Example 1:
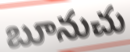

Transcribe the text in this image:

బూనుచు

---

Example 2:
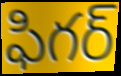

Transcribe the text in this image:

ఫిగర్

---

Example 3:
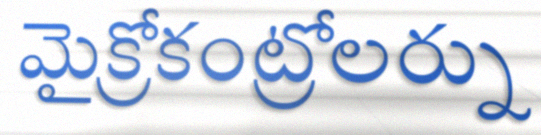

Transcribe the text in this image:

మైక్రోకంట్రోలర్ను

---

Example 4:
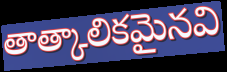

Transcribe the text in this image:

తాత్కాలికమైనవి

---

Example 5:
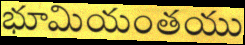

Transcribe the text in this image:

భూమియంతయు